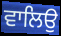
ਵਾਲਿਉ